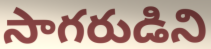
సాగరుడిని